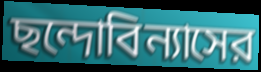
ছন্দোবিন্যাসের